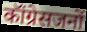
कॉंग्रेसजनों